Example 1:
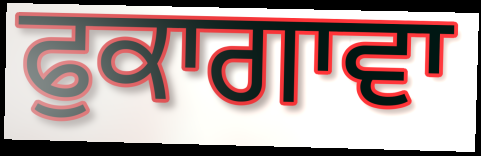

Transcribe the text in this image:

ਫੁਕਾਗਾਵਾ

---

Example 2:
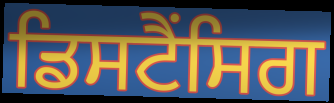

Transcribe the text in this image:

ਡਿਸਟੈਂਸਿਗ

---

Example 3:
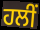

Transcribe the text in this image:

ਹਲੀਂ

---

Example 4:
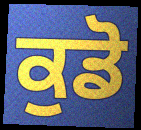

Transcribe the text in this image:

ਕੁਡੋ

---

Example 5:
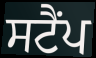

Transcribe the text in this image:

ਸਟੈਂਪ